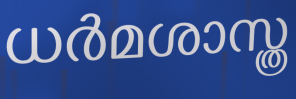
ധർമശാസ്ത്ര